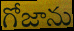
గోజాను